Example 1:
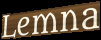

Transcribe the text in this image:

Lemna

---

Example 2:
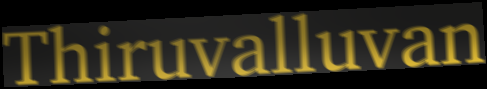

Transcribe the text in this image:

Thiruvalluvan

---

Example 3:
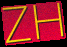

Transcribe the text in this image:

ZH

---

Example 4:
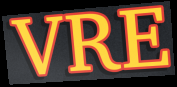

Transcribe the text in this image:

VRE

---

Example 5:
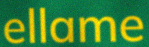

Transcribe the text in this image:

ellame